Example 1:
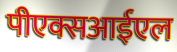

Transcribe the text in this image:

पीएक्सआईएल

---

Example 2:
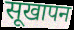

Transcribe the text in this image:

सूखापन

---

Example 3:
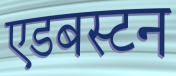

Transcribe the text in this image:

एडबस्टन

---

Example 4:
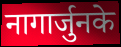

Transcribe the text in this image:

नागार्जुनके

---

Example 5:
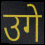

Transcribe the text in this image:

उगे